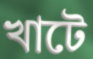
খাটে